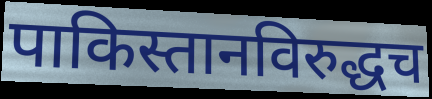
पाकिस्तानविरुद्धच